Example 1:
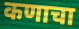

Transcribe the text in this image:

कणाचा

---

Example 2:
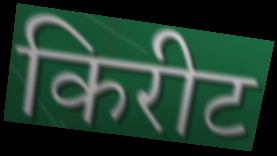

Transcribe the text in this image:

किरीट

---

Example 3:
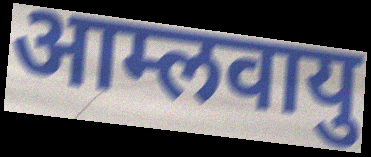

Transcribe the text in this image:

आम्लवायु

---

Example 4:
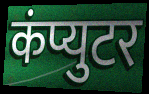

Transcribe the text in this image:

कंप्युटर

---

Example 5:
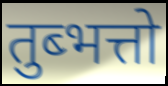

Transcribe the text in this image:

तुब्भत्तो